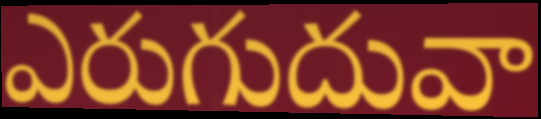
ఎరుగుదువా